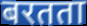
बरतता